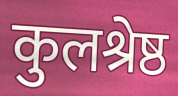
कुलश्रेष्ठ